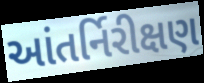
આંતર્નિરીક્ષણ